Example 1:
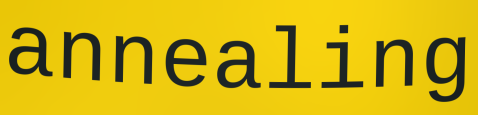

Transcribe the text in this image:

annealing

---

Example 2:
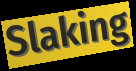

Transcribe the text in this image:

Slaking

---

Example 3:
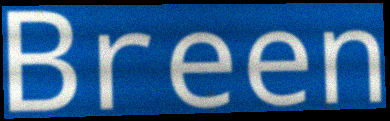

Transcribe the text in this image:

Breen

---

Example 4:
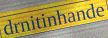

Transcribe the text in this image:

drnitinhande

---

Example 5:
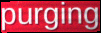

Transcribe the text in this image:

purging